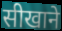
सीखाने